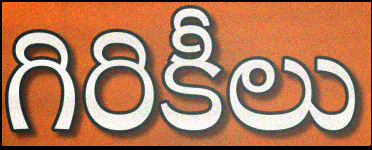
గిరికీలు